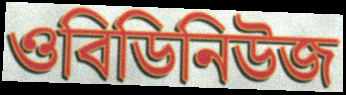
ওবিডিনিউজ